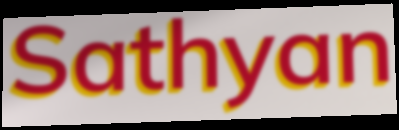
Sathyan